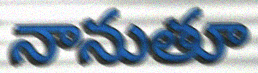
నానుతూ